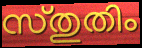
സ്തുതിം